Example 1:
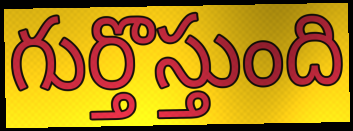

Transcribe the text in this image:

గుర్తొస్తుంది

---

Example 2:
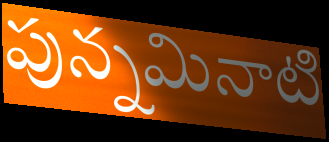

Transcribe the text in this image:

పున్నమినాటి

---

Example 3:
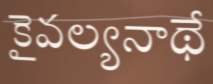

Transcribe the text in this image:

కైవల్యనాథే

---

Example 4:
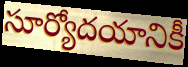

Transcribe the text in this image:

సూర్యోదయానికీ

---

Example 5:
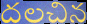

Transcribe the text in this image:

దలచిన